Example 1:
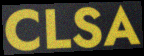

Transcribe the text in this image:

CLSA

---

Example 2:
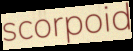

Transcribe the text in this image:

scorpoid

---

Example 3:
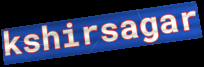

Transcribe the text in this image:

kshirsagar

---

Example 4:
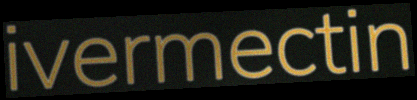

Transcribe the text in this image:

ivermectin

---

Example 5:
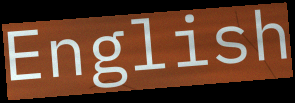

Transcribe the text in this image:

English